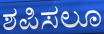
ಶಪಿಸಲೂ